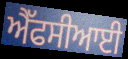
ਐੱਫਸੀਆਈ